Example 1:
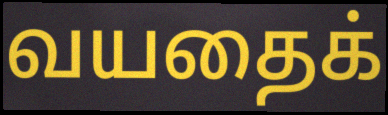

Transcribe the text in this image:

வயதைக்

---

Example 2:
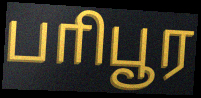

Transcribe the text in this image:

பரிபூர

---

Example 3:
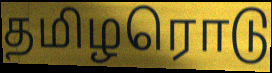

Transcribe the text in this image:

தமிழரொடு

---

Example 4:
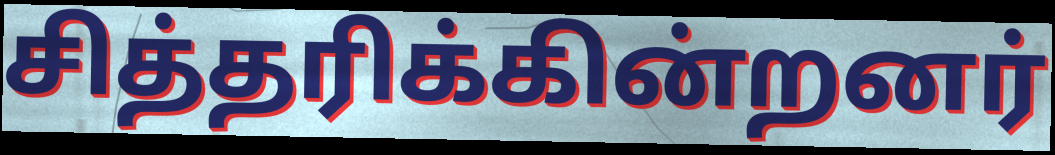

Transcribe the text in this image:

சித்தரிக்கின்றனர்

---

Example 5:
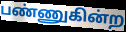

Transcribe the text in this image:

பண்ணுகின்ற